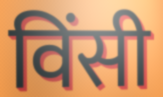
विंसी